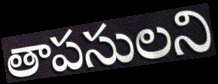
తాపసులని